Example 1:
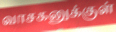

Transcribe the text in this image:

வாசகனுக்குள்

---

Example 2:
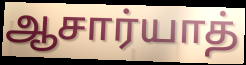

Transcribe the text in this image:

ஆசார்யாத்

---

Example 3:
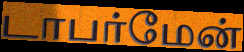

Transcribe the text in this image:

டாபர்மேன்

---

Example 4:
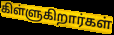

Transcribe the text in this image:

கிள்ளுகிறார்கள்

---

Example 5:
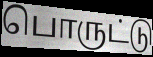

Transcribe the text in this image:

பொருட்டு